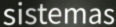
sistemas